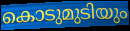
കൊടുമുടിയും